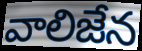
వాలిజేన